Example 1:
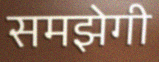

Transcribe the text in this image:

समझेगी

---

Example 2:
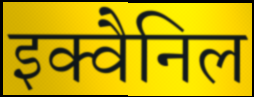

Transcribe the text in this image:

इक्वैनिल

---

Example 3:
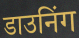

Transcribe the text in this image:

डाउनिंग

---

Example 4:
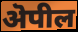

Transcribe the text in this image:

ऄपील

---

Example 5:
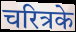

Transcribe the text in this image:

चरित्रके